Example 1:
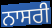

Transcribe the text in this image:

ਨਾਸਰੀ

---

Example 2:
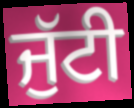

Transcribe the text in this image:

ਜੁੱਟੀ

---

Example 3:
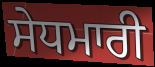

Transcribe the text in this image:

ਸੇਧਮਾਰੀ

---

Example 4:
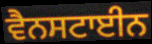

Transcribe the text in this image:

ਵੈਨਸਟਾਈਨ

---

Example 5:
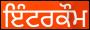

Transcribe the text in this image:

ਇੰਟਰਕੌਮ